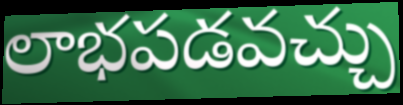
లాభపడవచ్చు